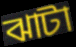
ঝাটা